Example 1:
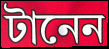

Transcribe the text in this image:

টানেন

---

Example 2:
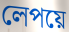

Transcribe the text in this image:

লেপয়ে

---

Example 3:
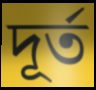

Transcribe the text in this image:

দূর্ত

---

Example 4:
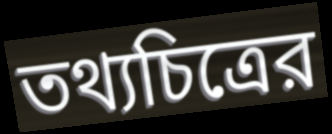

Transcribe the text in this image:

তথ্যচিত্রের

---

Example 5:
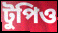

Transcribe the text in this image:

টুপিও